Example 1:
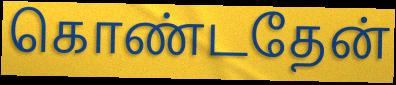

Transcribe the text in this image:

கொண்டதேன்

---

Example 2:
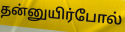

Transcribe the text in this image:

தன்னுயிர்போல்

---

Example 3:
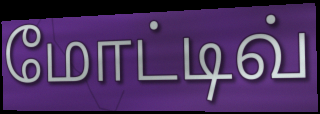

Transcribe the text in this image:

மோட்டிவ்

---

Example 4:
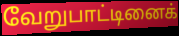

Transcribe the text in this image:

வேறுபாட்டினைக்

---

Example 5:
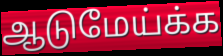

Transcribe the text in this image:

ஆடுமேய்க்க